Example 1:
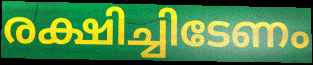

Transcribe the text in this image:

രക്ഷിച്ചിടേണം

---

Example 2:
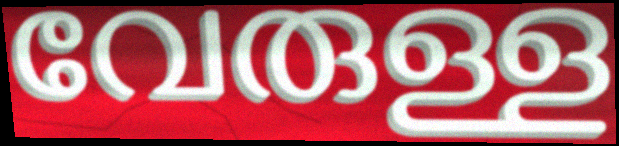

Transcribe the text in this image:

വേരുള്ള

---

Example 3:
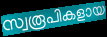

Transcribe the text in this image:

സ്വരൂപികളായ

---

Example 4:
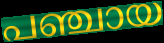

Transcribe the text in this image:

പഞ്ചായ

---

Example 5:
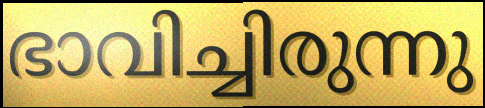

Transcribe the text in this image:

ഭാവിച്ചിരുന്നു